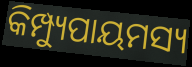
କିମ୍ପ୍ୟୁପାୟମସ୍ୟ